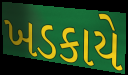
ખડકાયે